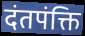
दंतपंक्ति